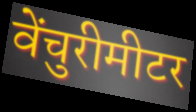
वेंचुरीमीटर